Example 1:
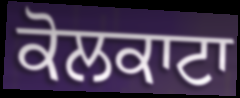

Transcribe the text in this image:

ਕੋਲਕਾਟਾ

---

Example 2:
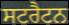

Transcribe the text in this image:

ਸਟਰੈਟਨ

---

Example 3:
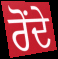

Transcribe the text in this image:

ਰੋਂਦੇ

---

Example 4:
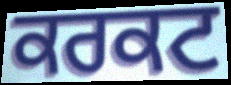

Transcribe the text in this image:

ਕਰਕਟ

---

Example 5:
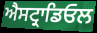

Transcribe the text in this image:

ਐਸਟ੍ਰਾਡਿਓਲ